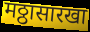
मठ्ठासारखा